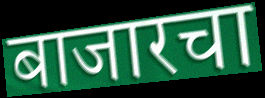
बाजारचा